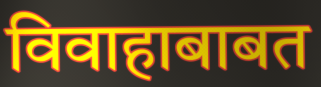
विवाहाबाबत